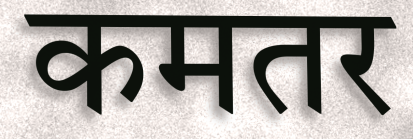
कमतर